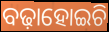
ବଢ଼ାହୋଇଚି